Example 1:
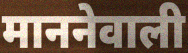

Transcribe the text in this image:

माननेवाली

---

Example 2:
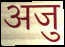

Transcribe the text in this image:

अजु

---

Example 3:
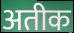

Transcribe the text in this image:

अतीक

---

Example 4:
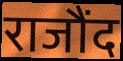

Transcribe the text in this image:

राजौंद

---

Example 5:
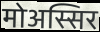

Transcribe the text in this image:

मोअस्सिर